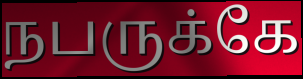
நபருக்கே